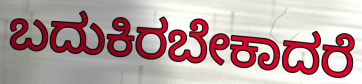
ಬದುಕಿರಬೇಕಾದರೆ